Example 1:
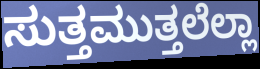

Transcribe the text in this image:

ಸುತ್ತಮುತ್ತಲೆಲ್ಲಾ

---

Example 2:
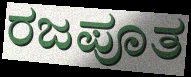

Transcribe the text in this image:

ರಜಪೂತ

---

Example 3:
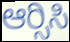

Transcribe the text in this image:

ಆರ್‍ಸಿಸಿ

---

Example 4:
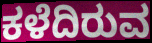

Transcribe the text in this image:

ಕಳೆದಿರುವ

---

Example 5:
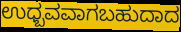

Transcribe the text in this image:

ಉಧ್ಬವವಾಗಬಹುದಾದ